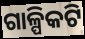
ଗାଳ୍ପିକଟି